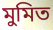
মুমিত